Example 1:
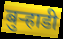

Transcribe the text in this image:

बुऱ्हाडी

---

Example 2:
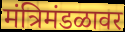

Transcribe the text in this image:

मंत्रिमंडळावर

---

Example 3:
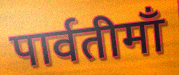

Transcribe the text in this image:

पार्वतीमाँ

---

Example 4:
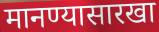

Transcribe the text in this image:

मानण्यासारखा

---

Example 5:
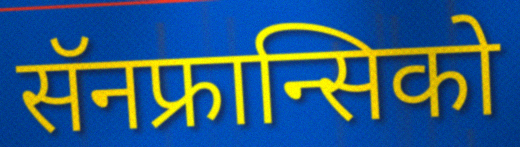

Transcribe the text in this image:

सॅनफ्रान्सिको